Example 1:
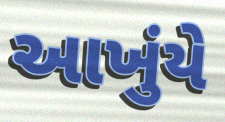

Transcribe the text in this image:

આખુંયે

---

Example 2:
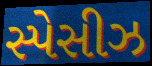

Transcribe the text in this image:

સ્પેસીઝ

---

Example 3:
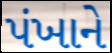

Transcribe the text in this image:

પંખાને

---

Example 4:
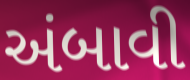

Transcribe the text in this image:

અંબાવી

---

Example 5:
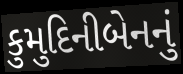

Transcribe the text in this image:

કુમુદિનીબેનનું